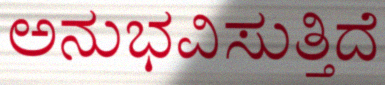
ಅನುಭವಿಸುತ್ತಿದೆ